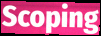
Scoping